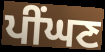
ਪੀਂਘਣ